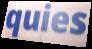
quies